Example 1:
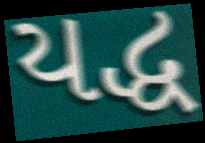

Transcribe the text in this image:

યદ્ધ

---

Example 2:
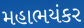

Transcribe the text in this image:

મહાભયંકર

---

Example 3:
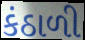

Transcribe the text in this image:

કંઠાળી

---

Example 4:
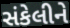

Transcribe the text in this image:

સંકેલીને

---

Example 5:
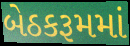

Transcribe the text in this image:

બેઠકરૂમમાં